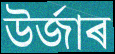
উৰ্জাৰ